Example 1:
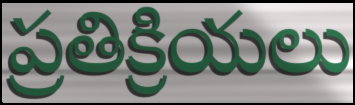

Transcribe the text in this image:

ప్రతిక్రియలు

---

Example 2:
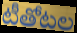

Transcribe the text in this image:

టీతోటల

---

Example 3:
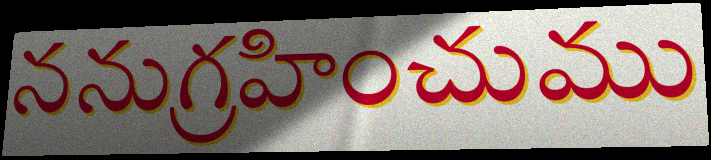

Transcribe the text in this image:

ననుగ్రహించుము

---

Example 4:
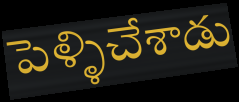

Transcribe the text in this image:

పెళ్ళిచేశాడు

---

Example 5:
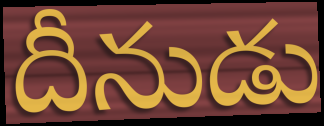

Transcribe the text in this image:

దీనుడు